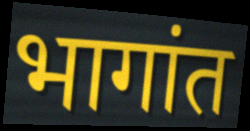
भागांत